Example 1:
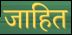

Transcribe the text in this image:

जाहित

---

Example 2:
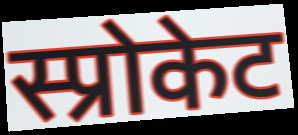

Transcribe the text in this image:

स्प्रोकेट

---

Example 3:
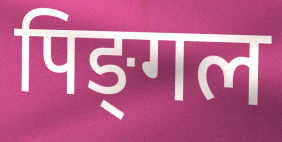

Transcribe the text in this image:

पिङ्गल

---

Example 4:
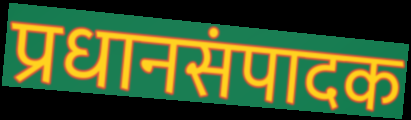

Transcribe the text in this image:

प्रधानसंपादक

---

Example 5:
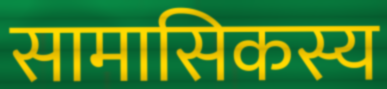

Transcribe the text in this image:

सामासिकस्य